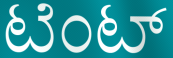
ಟೆಂಟ್